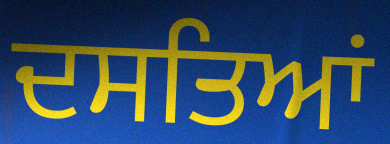
ਦਸਤਿਆਂ